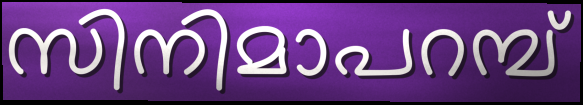
സിനിമാപറമ്പ്